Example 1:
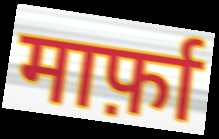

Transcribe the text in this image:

मार्फ़ा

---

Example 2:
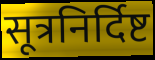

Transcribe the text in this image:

सूत्रनिर्दिष्ट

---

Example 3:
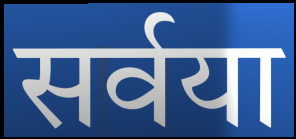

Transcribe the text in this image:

सर्वया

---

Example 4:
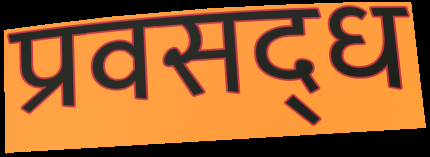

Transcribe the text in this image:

प्रवसद्ध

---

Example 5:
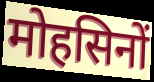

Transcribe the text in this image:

मोहसिनों